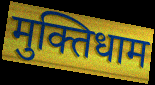
मुक्तिधाम